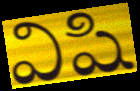
విషి